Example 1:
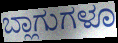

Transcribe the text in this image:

ಬ್ಲಾಗುಗಳೂ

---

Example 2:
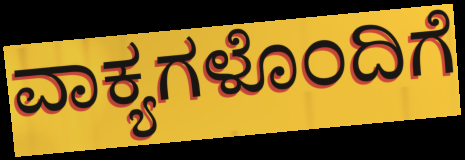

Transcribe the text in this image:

ವಾಕ್ಯಗಳೊಂದಿಗೆ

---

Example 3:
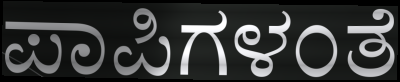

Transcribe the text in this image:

ಪಾಪಿಗಳಂತೆ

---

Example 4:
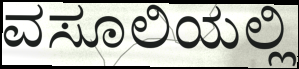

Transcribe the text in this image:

ವಸೂಲಿಯಲ್ಲಿ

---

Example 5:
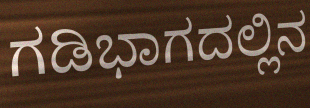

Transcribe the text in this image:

ಗಡಿಭಾಗದಲ್ಲಿನ